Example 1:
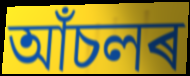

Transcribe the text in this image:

আঁচলৰ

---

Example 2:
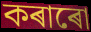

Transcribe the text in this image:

কৰাৰো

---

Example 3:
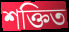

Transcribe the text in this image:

শক্তিত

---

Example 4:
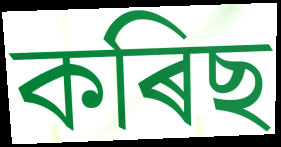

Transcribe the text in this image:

কৰিছ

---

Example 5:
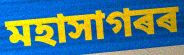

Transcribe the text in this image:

মহাসাগৰৰ